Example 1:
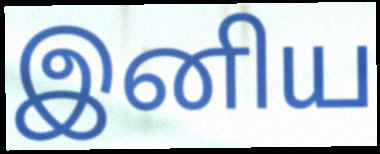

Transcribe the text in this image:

இனிய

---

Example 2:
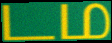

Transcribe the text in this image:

டம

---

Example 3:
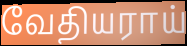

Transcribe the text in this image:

வேதியராய்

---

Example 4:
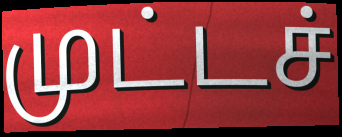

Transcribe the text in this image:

முட்டச்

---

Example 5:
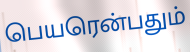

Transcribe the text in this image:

பெயரென்பதும்